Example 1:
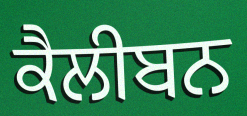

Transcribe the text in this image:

ਕੈਲੀਬਨ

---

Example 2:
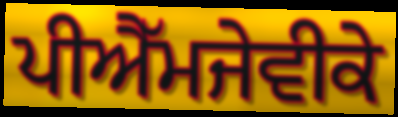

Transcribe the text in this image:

ਪੀਐੱਮਜੇਵੀਕੇ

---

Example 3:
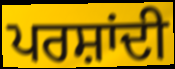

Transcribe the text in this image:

ਪਰਸ਼ਾਂਦੀ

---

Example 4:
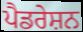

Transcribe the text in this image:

ਪੈਡਰੇਸ਼ਨ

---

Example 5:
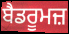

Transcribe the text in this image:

ਬੈਡਰੂਮਜ਼